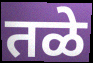
तळे